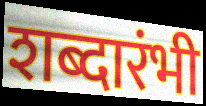
शब्दारंभी